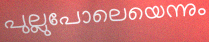
പുല്ലുപോലെയെന്നും